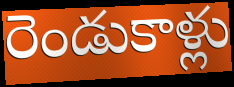
రెండుకాళ్లు